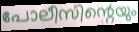
പോലീസിന്റെയും